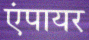
एंपायर